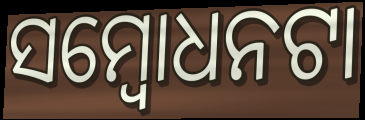
ସମ୍ବୋଧନଟା